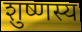
शुष्णस्य